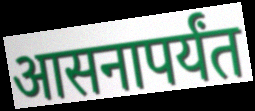
आसनापर्यंत